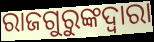
ରାଜଗୁରୁଙ୍କଦ୍ୱାରା